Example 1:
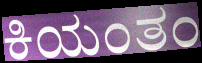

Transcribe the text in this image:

ಕಿಯಂತಂ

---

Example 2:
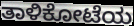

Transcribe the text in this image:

ತಾಳಿಕೋಟೆಯ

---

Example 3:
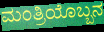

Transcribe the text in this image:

ಮಂತ್ರಿಯೊಬ್ಬನ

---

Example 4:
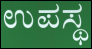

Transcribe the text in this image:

ಉಪಸ್ಥ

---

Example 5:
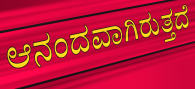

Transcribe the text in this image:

ಆನಂದವಾಗಿರುತ್ತದೆ